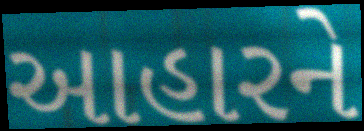
આહારને